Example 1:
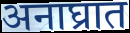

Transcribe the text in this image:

अनाघ्रात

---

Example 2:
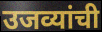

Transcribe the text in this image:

उजव्यांची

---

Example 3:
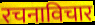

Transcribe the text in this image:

रचनाविचार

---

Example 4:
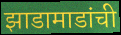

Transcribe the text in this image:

झाडामाडांची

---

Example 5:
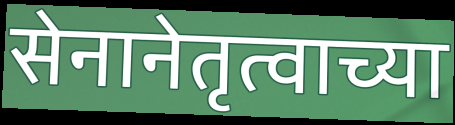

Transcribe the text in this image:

सेनानेतृत्वाच्या